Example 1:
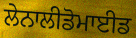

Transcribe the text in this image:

ਲੇਨਾਲੀਡੋਮਾਈਡ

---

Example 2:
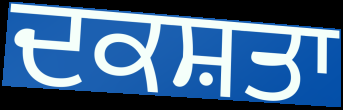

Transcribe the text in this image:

ਦਕਸ਼ਤਾ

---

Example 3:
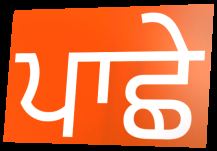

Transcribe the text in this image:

ਪਾਛੇ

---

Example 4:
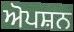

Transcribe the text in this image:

ਅੋਪਸ਼ਨ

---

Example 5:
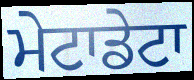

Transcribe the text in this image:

ਮੇਟਾਡੇਟਾ